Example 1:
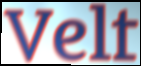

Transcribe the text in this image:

Velt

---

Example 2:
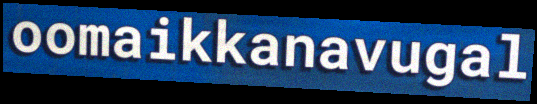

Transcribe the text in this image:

oomaikkanavugal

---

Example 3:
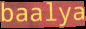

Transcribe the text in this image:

baalya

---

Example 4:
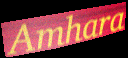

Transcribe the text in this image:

Amhara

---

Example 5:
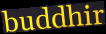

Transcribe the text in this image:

buddhir